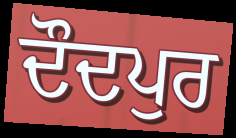
ਦੌਦਪੁਰ